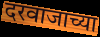
दरवाजाच्या